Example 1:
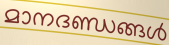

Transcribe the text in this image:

മാനദണ്ഡങ്ങൾ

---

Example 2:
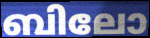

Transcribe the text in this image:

ബിലോ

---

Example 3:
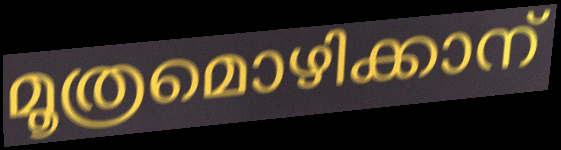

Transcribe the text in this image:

മൂത്രമൊഴിക്കാന്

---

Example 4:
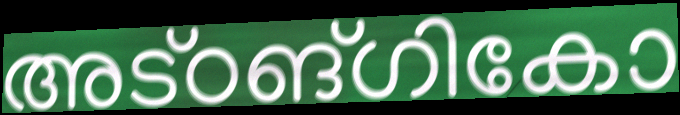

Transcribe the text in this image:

അട്ഠങ്ഗികോ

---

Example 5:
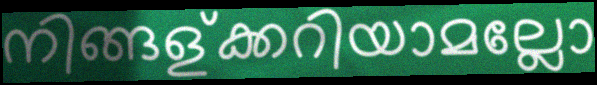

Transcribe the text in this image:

നിങ്ങള്ക്കറിയാമല്ലോ